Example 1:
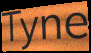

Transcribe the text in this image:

Tyne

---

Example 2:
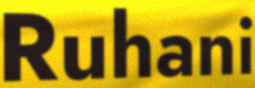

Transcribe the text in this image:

Ruhani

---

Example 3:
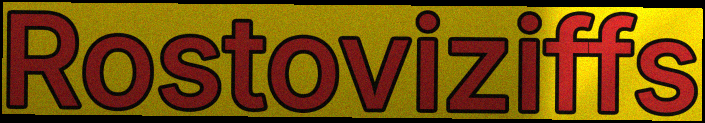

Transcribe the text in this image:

Rostoviziffs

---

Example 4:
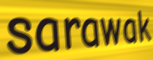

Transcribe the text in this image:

sarawak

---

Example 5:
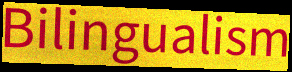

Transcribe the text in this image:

Bilingualism